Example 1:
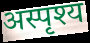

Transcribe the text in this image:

अस्पृश्य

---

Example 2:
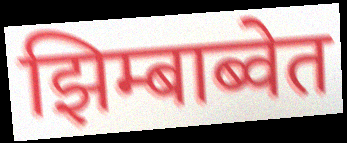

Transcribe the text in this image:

झिम्बाब्वेत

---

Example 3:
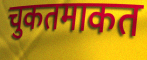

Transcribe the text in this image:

चुकतमाकत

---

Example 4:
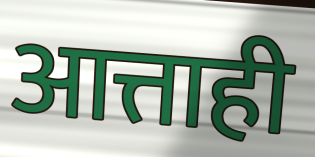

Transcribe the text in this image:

आत्ताही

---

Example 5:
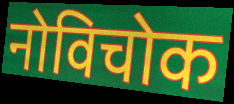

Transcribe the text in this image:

नोविचोक